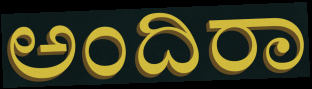
ಅಂದಿರಾ